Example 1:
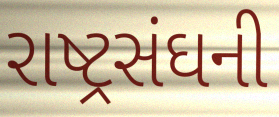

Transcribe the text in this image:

રાષ્ટ્રસંઘની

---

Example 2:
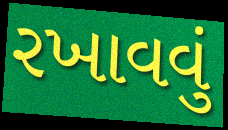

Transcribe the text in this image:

રખાવવું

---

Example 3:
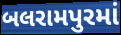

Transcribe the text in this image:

બલરામપુરમાં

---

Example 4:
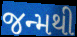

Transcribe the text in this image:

જન્મથી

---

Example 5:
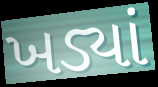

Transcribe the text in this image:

ખડ્યાં